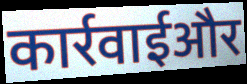
कार्रवाईऔर